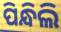
ପିନ୍ଧିଲି